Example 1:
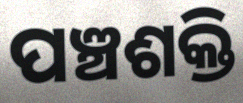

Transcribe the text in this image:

ପଞ୍ଚଶକ୍ତି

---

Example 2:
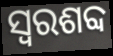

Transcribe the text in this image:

ସ୍ୱରଶବ୍ଦ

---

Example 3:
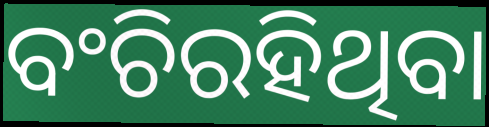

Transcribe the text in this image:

ବଂଚିରହିଥିବା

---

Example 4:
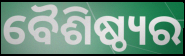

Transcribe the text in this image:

ବୈଶିଷ୍ଠ୍ୟର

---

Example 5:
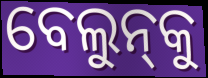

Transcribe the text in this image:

ବେଲୁନ୍‌କୁ